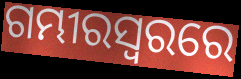
ଗମ୍ଭୀରସ୍ୱରରେ